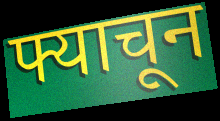
फ्याचून